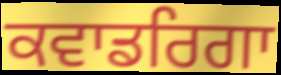
ਕਵਾਡਰਿਗਾ